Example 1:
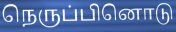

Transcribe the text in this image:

நெருப்பினொடு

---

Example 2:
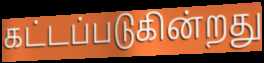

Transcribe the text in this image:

கட்டப்படுகின்றது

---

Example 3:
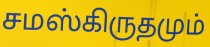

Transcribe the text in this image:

சமஸ்கிருதமும்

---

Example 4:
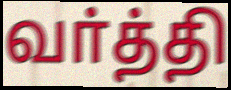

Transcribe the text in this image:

வர்த்தி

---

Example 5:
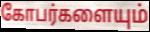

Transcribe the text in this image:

கோபர்களையும்